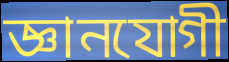
জ্ঞানযোগী